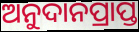
ଅନୁଦାନପ୍ରାପ୍ତ